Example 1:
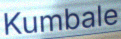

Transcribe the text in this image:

Kumbale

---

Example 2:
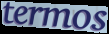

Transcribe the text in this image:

termos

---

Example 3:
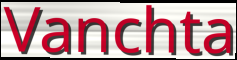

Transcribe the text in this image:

Vanchta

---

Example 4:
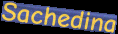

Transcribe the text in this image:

Sachedina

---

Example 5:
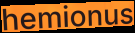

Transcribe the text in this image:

hemionus